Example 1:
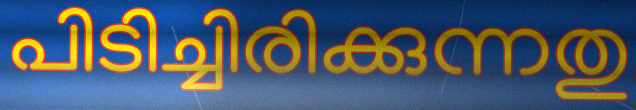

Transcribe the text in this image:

പിടിച്ചിരിക്കുന്നതു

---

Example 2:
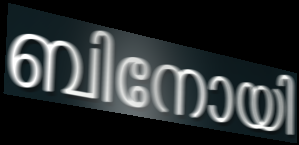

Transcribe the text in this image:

ബിനോയി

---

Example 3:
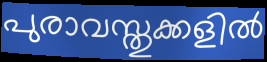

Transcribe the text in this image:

പുരാവസ്തുക്കളിൽ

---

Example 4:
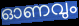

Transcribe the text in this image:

ഓണവും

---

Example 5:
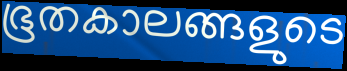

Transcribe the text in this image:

ഭൂതകാലങ്ങളുടെ